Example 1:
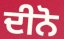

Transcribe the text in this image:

ਦੀਨੋ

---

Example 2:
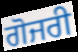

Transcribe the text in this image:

ਗੋਜਰੀ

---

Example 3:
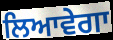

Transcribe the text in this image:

ਲਿਆਵੇਗਾ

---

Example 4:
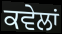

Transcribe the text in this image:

ਕਵੇਲਾਂ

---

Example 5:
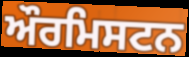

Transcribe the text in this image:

ਔਰਮਿਸਟਨ